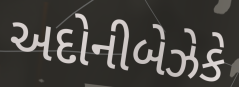
અદોનીબેઝેકે